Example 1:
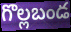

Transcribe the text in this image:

గొల్లబండ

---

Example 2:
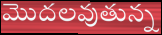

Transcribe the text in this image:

మొదలవుతున్న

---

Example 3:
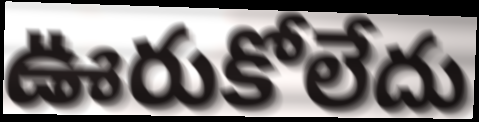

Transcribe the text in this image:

ఊరుకోలేదు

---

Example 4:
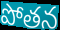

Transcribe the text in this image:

పోతన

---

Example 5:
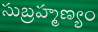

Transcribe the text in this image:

సుబ్రహ్మణ్యం